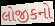
લોજીકનો